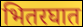
भितरघात